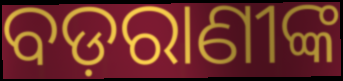
ବଡ଼ରାଣୀଙ୍କ